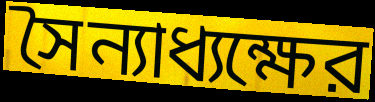
সৈন্যাধ্যক্ষের